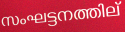
സംഘട്ടനത്തില്